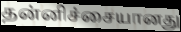
தன்னிச்சையானது